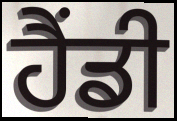
ਹੈਂਡੀ